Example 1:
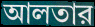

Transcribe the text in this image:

আলতার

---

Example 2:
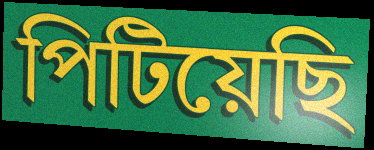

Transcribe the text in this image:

পিটিয়েছি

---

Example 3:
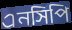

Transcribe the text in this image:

এনসিপি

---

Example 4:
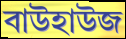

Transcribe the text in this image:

বাউহাউজ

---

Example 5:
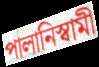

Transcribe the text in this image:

পালানিস্বামী